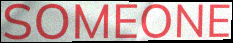
SOMEONE